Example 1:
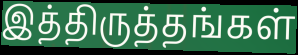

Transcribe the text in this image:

இத்திருத்தங்கள்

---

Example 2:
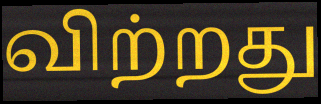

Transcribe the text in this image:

விற்றது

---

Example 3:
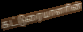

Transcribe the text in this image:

கட்டுரையாளரின்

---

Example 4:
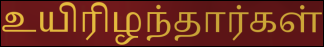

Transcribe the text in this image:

உயிரிழந்தார்கள்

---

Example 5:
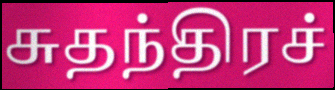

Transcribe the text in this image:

சுதந்திரச்